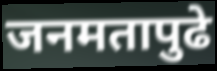
जनमतापुढे